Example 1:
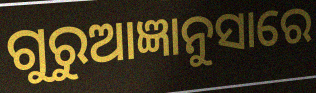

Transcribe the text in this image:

ଗୁରୁଆଜ୍ଞାନୁସାରେ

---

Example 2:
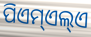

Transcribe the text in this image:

ପିଏମ୍ଏଲ୍ଏ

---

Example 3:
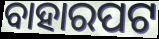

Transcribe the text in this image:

ବାହାରପଟ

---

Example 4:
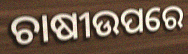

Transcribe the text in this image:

ଚାଷୀଉପରେ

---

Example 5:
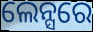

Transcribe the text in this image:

ଲେନ୍ସରେ